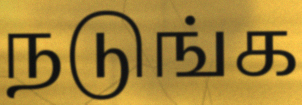
நடுங்க